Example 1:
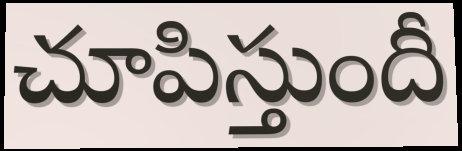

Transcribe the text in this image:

చూపిస్తుందీ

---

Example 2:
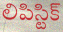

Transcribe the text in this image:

లిపిస్టిక్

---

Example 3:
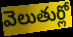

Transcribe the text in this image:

వెలుతుర్లో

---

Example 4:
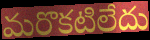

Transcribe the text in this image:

మరొకటిలేదు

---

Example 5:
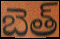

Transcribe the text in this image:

బెత్